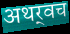
अथर्वच